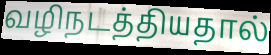
வழிநடத்தியதால்